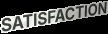
SATISFACTION